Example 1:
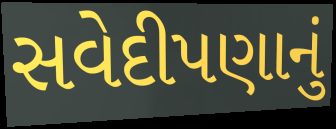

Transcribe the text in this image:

સવેદીપણાનું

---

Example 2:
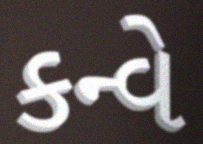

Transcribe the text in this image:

કન્વે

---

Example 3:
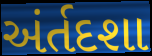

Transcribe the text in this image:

અંર્તદશા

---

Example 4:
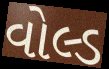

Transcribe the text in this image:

વોલ્ડ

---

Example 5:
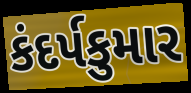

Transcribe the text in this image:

કંદર્પકુમાર